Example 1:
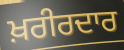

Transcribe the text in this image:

ਖ਼ਰੀਰਦਾਰ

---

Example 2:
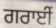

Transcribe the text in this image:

ਗਰਾਈਂ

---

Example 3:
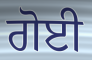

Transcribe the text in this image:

ਗੋਈ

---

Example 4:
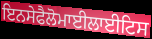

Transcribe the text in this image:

ਇਨਸੇਫੈਲੋਮਾਈਲਾਈਟਿਸ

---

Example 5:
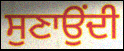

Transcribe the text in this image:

ਸੁਣਾਉਂਦੀ